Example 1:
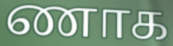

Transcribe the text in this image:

ணாக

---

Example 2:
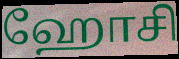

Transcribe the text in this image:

ஹோசி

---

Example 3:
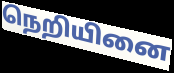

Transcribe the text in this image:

நெறியினை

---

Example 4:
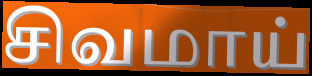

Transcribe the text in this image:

சிவமாய்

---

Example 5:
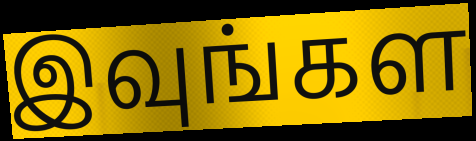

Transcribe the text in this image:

இவுங்கள